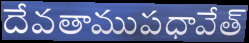
దేవతాముపధావేత్